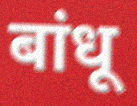
बांधू